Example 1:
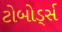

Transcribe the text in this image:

ટોબોર્ડ્સ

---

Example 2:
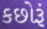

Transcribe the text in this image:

કછોરૂં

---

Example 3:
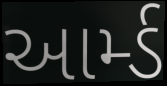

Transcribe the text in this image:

આર્મ્ડ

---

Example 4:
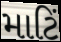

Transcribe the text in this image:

માટિં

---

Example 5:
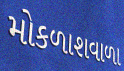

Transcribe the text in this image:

મોકળાશવાળા